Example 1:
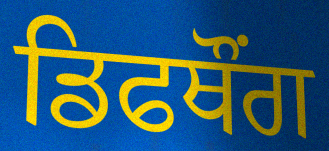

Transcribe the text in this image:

ਡਿਫਥੌਂਗ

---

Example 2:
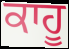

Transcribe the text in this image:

ਕਾਹੂ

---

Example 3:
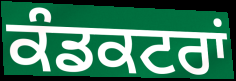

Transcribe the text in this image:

ਕੰਡਕਟਰਾਂ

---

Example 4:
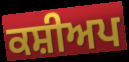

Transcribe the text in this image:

ਕਸ਼ੀਅਪ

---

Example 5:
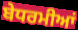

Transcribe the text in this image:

ਬੇਧਰਮੀਆਂ